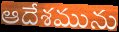
ఆదేశమును